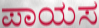
ಪಾಯಸ